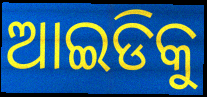
ଆଇଡିକୁ